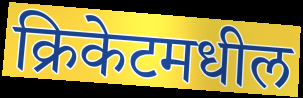
क्रिकेटमधील